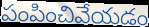
పంపించివేయడం